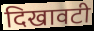
दिखावटी